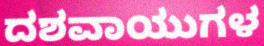
ದಶವಾಯುಗಳ